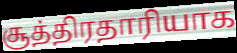
சூத்திரதாரியாக